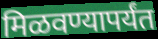
मिळवण्यापर्यंत